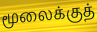
மூலைக்குத்